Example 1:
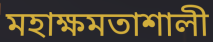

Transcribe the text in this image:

মহাক্ষমতাশালী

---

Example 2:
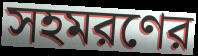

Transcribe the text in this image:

সহমরণের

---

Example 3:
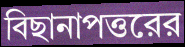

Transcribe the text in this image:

বিছানাপত্তরের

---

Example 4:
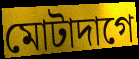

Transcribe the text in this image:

মোটাদাগে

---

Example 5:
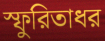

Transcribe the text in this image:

স্ফুরিতাধর